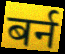
बर्न